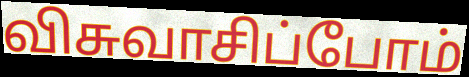
விசுவாசிப்போம்